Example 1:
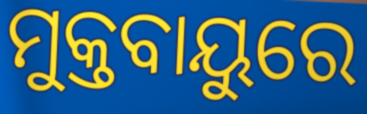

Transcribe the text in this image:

ମୁକ୍ତବାୟୁରେ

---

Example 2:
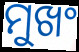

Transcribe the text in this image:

ମୁଖଂ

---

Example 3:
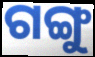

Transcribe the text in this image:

ଗଙ୍ଗୁ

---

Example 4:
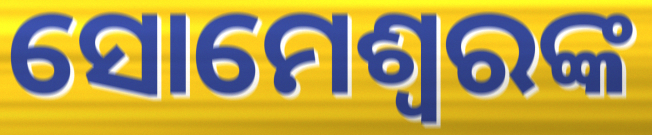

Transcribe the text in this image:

ସୋମେଶ୍ୱରଙ୍କ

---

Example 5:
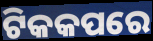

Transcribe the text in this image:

ଟିକକପରେ